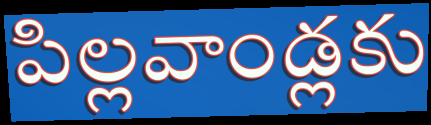
పిల్లవాండ్లకు